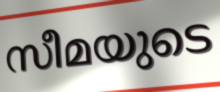
സീമയുടെ